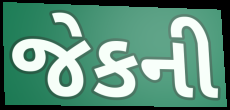
જેકની